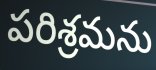
పరిశ్రమను